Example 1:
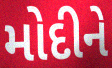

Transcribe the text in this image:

મોદીને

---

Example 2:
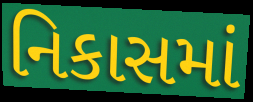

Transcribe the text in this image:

નિકાસમાં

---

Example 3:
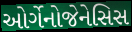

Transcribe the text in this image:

ઓર્ગેનોજેનેસિસ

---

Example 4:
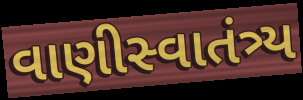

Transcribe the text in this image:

વાણીસ્વાતંત્ર્ય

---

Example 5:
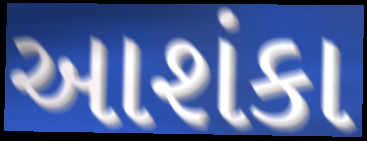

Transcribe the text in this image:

આશંકા